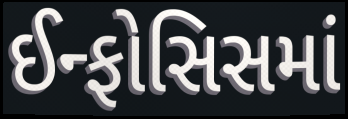
ઈન્ફોસિસમાં